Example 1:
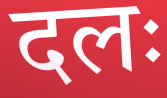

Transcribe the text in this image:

दलः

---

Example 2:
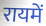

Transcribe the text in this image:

रायमें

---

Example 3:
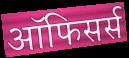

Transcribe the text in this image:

ऑफिसर्स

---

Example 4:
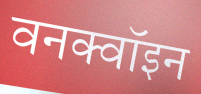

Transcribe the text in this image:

वनक्वॉइन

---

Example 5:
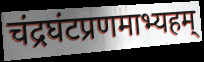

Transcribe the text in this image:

चंद्रघंटप्रणमाभ्यहम्